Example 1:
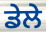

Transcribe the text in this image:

ਡੇਲੇ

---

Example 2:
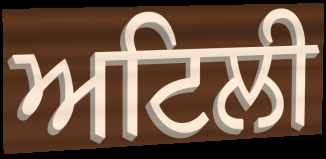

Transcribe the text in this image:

ਅਟਿਲੀ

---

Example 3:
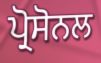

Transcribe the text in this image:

ਪ੍ਰੋਸੋਨਲ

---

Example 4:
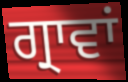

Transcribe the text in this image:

ਗ੍ਰਾਵਾਂ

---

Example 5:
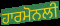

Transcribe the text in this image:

ਹਾਰਮੋਨਲੀ